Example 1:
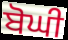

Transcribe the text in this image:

ਬੋਘੀ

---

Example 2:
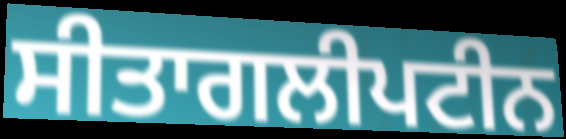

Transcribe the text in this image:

ਸੀਤਾਗਲੀਪਟੀਨ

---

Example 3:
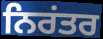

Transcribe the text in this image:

ਨਿਰਂਤਰ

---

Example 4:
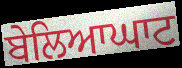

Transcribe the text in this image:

ਬੇਲਿਆਘਾਟ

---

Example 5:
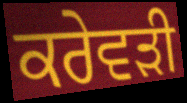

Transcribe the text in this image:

ਕਰੇਵੜੀ